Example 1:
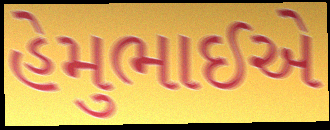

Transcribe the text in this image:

હેમુભાઈએ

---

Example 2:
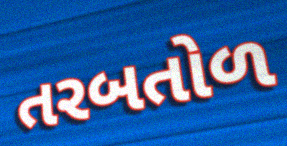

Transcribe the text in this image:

તરબતોળ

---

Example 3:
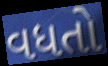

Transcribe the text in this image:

વધતો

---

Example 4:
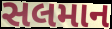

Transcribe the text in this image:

સલમાન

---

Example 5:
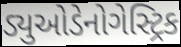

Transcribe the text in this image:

ડ્યુઓડેનોગેસ્ટ્રિક